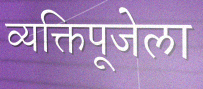
व्यक्तिपूजेला